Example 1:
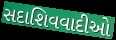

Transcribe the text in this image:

સદાશિવવાદીઓ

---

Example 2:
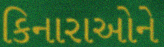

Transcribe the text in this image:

કિનારાઓને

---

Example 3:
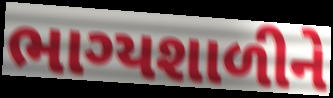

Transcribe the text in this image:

ભાગ્યશાળીને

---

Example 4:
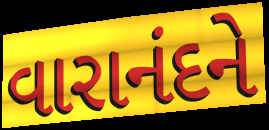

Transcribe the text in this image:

વારાનંદને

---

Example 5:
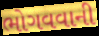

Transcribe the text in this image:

ભોગવવાની